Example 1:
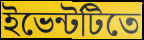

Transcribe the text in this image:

ইভেন্টটিতে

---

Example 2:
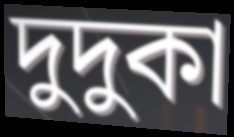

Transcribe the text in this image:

দুদুকা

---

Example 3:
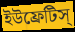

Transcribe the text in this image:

ইউফ্রেটিস্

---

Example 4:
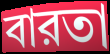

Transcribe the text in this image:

বারতা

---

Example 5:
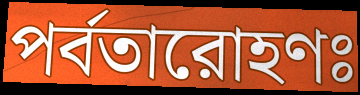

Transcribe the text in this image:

পর্বতারোহণঃ